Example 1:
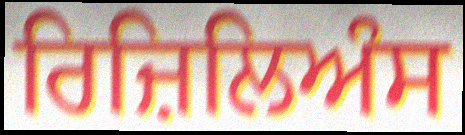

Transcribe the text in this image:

ਰਿਜ਼ਿਲਿਅੰਸ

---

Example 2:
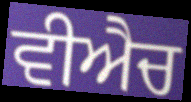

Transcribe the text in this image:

ਵੀਐਚ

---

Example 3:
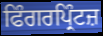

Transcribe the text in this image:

ਫਿੰਗਰਪ੍ਰਿੰਟਜ਼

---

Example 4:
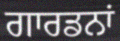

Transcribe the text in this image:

ਗਾਰਡਨਾਂ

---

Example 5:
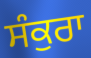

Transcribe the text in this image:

ਸੰਕੁਰਾ